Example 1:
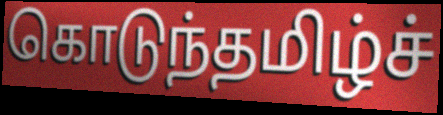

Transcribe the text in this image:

கொடுந்தமிழ்ச்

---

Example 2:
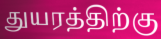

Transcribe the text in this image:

துயரத்திற்கு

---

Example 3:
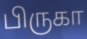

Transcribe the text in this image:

பிருகா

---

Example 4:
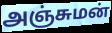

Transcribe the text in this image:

அஞ்சுமன்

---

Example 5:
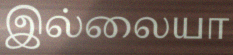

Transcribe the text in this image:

இல்லையா